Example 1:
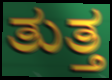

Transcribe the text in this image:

ತುತ್ತ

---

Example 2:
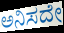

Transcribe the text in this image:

ಅನಿಸದೇ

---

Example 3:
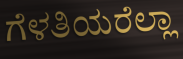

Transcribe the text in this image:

ಗೆಳತಿಯರೆಲ್ಲಾ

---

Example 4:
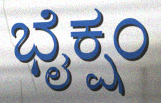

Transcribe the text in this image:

ಭೈಕ್ಷಂ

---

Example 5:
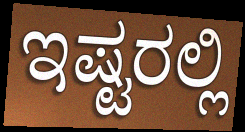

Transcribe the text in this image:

ಇಷ್ಟರಲ್ಲಿ